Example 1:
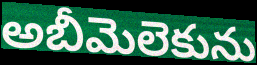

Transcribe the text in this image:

అబీమెలెకును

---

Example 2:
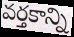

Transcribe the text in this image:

వర్తకాన్ని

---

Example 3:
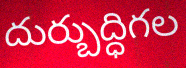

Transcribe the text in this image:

దుర్బుద్ధిగల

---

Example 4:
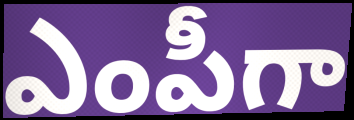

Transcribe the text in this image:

ఎంపీగా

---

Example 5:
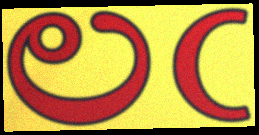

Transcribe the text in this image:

లఁ